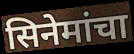
सिनेमांचा